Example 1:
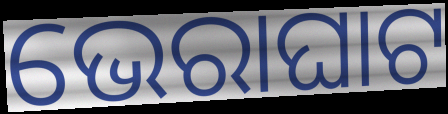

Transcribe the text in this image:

ଭେରାଘାଟ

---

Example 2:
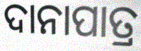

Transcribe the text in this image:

ଦାନାପାତ୍ର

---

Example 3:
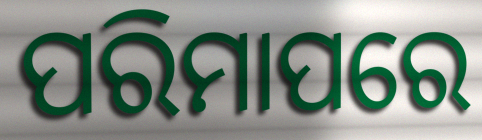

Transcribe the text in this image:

ପରିମାପରେ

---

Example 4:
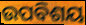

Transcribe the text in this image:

ଉପବିଶୟ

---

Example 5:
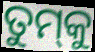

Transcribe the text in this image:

ତୁମ୍‌କୁ